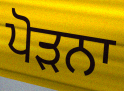
ਪੋੜਨਾ